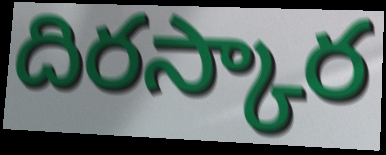
దిరస్కార